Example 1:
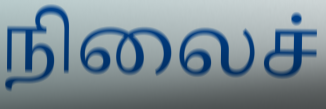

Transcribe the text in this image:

நிலைச்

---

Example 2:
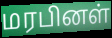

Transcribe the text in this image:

மரபினள்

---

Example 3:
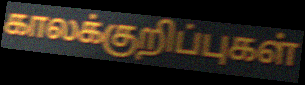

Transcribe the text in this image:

காலக்குறிப்புகள்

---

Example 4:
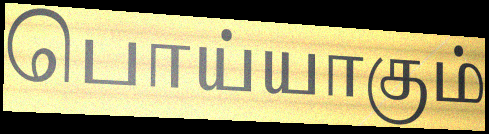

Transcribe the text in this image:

பொய்யாகும்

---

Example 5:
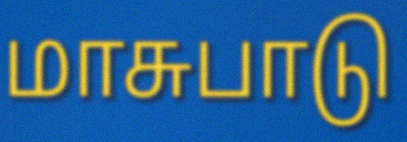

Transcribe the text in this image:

மாசுபாடு